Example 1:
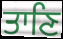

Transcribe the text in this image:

ਤਾਣਿ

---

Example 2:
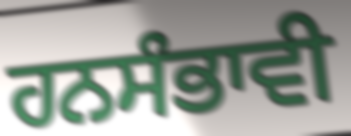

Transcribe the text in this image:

ਹਨਸੰਭਾਵੀ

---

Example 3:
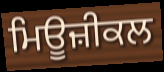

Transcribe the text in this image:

ਮਿਊਜ਼ੀਕਲ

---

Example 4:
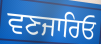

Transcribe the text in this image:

ਵਣਜਾਰਿਓ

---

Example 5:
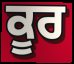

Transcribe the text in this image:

ਕੂਰ